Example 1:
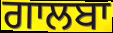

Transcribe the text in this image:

ਗਾਲਬਾ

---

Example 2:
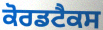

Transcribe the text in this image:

ਕੋਰਡਟੈਕਸ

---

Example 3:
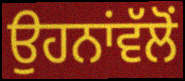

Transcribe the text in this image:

ਉਹਨਾਂਵੱਲੋਂ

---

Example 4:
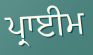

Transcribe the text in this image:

ਪ੍ਰਾਈਮ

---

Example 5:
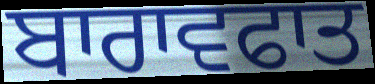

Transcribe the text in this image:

ਬਾਰਾਵਫਾਤ